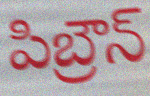
పిబ్రౌన్